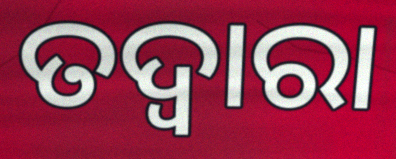
ତଦ୍ବାରା